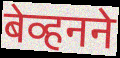
बेव्हनने